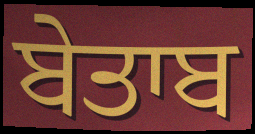
ਬੇਤਾਬ